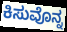
ಕಿಸುವೊನ್ನ